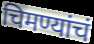
चिमण्यांचं